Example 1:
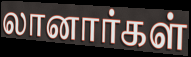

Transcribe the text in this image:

லானார்கள்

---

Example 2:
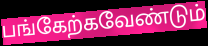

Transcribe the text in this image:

பங்கேற்கவேண்டும்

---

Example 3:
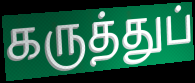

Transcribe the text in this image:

கருத்துப்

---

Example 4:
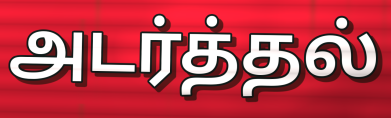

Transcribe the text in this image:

அடர்த்தல்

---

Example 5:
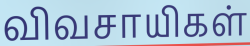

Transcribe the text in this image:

விவசாயிகள்